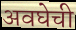
अवघेची